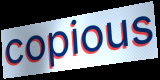
copious